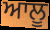
ਆਲੂ